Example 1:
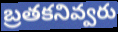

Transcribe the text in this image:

బ్రతకనివ్వరు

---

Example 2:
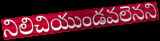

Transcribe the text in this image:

నిలిచియుండవలెనని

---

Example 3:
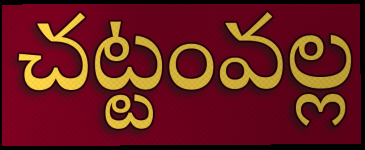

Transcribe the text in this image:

చట్టంవల్ల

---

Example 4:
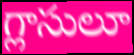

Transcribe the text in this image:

గ్లాసులూ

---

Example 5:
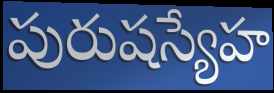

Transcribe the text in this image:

పురుషస్యేహ